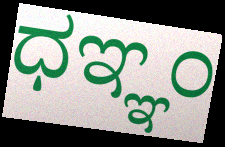
ಧಞ್ಞಂ